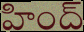
హింద్